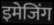
इमेजिंग